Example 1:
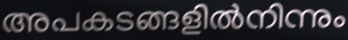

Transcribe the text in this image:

അപകടങ്ങളിൽനിന്നും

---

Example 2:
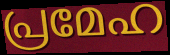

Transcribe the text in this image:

പ്രമേഹ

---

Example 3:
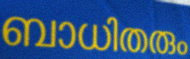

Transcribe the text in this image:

ബാധിതരും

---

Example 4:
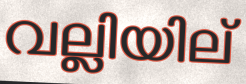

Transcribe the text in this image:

വല്ലിയില്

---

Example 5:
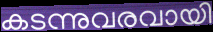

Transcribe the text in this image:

കടന്നുവരവായി